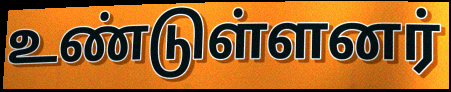
உண்டுள்ளனர்